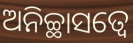
ଅନିଚ୍ଛାସତ୍ୱେ